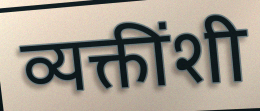
व्यक्तींशी